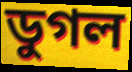
ডুগল